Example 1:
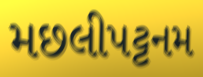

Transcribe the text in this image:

મછલીપટ્ટનમ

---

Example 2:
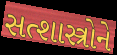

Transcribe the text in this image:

સત્શાસ્ત્રોને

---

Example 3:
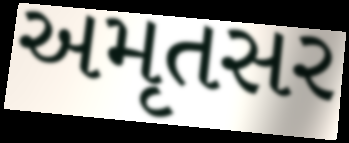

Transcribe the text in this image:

અમૃતસર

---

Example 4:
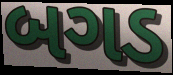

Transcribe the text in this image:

બગડ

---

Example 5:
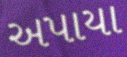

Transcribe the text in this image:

અપાયા